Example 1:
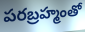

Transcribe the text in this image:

పరబ్రహ్మంతో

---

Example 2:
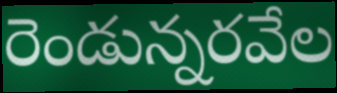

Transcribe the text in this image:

రెండున్నరవేల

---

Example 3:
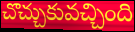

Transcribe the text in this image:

చొచ్చుకువచ్చింది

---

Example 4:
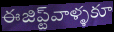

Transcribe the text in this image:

ఈజిప్ట్‌వాళ్ళకూ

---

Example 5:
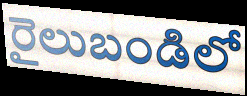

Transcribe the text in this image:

రైలుబండిలో